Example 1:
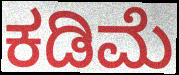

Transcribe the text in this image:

ಕಡಿಮೆ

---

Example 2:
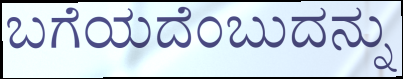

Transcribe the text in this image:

ಬಗೆಯದೆಂಬುದನ್ನು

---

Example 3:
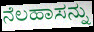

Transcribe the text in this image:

ನೆಲಹಾಸನ್ನು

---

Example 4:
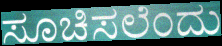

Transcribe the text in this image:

ಸೂಚಿಸಲೆಂದು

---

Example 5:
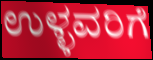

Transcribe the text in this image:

ಉಳ್ಳವರಿಗೆ